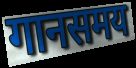
गानसमय